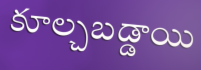
కూల్చబడ్డాయి